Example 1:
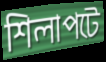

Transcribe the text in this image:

শিলাপটে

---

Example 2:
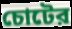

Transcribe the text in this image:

চোটের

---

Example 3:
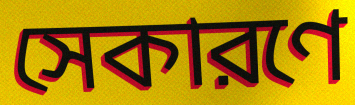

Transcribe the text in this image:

সেকারণে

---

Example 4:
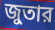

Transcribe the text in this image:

জুতার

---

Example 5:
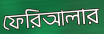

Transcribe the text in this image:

ফেরিআলার